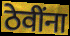
ठेवींना